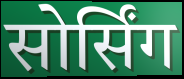
सोर्सिंग